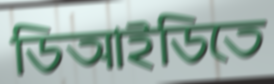
ডিআইডিতে